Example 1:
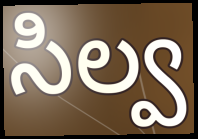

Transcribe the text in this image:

సిల్వ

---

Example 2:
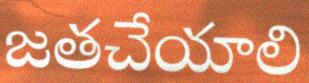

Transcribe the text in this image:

జతచేయాలి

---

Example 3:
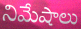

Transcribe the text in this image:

నిమేషాలు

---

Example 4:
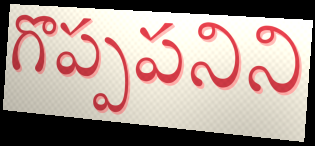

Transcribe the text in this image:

గొప్పపనిని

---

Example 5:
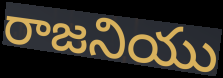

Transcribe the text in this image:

రాజనియు